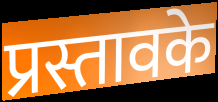
प्रस्तावके